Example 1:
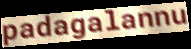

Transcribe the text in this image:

padagalannu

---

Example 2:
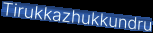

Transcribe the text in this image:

Tirukkazhukkundru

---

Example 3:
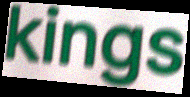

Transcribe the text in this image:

kings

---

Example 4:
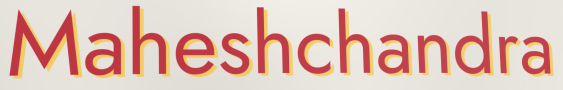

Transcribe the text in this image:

Maheshchandra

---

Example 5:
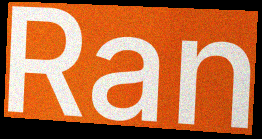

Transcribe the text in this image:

Ran